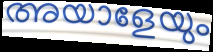
അയാളേയും